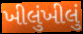
ખીલુંખીલું